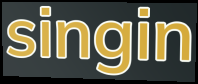
singin